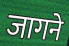
जागने